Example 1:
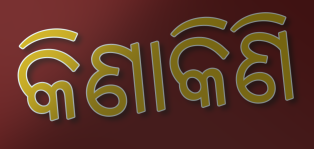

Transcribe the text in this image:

କିଣାକିଣି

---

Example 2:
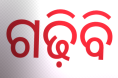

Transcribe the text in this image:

ଗଢ଼ିବି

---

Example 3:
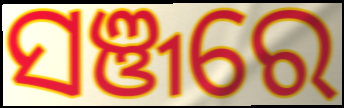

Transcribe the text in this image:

ସଞ୍ଜରେ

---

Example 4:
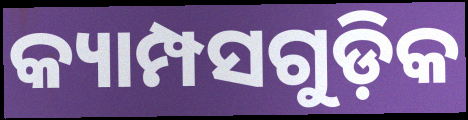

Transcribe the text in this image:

କ୍ୟାମ୍ପସଗୁଡ଼ିକ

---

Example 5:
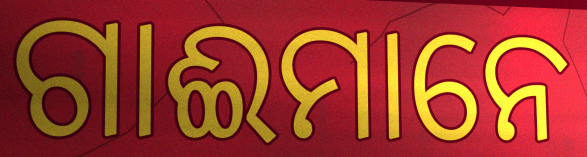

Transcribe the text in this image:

ଗାଈମାନେ